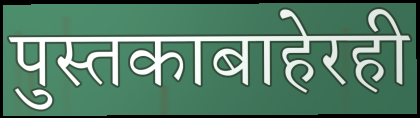
पुस्तकाबाहेरही